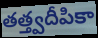
తత్త్వదీపికా